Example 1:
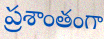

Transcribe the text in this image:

ప్రశాంతంగా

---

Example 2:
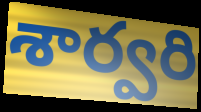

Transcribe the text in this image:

శార్వరి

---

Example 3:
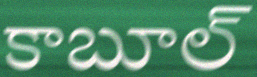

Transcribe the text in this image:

కాబూల్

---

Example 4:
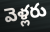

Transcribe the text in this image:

వెళ్లరు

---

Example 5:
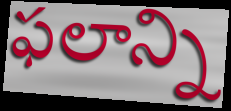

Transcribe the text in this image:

ఫలాన్ని